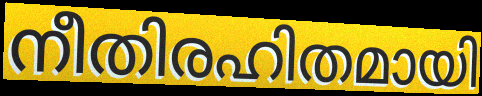
നീതിരഹിതമായി